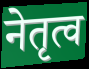
नेतृत्व